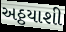
અઠ્ઠયાશી